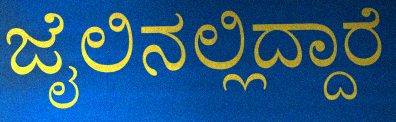
ಜೈಲಿನಲ್ಲಿದ್ದಾರೆ